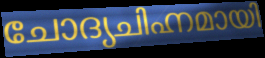
ചോദ്യചിഹ്നമായി